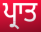
ਪ੍ਰਾਤ